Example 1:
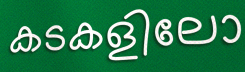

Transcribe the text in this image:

കടകളിലോ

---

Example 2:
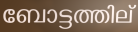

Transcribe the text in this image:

ബോട്ടത്തില്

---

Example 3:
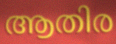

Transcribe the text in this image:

ആതിര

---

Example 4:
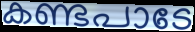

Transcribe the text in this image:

കണ്ടപാടേ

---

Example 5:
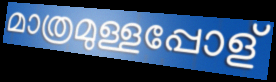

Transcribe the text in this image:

മാത്രമുള്ളപ്പോള്